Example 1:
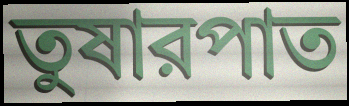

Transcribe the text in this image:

তুষারপাত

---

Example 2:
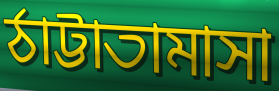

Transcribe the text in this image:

ঠাট্টাতামাসা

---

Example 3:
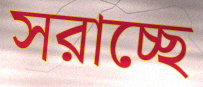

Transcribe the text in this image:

সরাচ্ছে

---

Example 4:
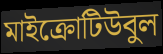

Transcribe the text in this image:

মাইক্রোটিউবুল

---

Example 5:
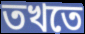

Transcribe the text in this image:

তখতে